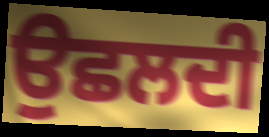
ਉਛਲਦੀ